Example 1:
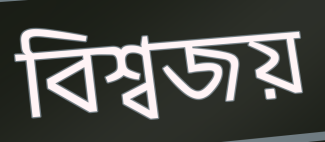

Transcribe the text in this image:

বিশ্বজয়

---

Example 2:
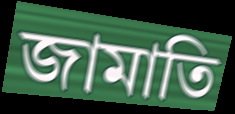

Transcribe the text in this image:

জামাতি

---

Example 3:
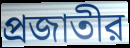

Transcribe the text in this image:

প্রজাতীর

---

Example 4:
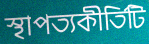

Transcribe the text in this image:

স্থাপত্যকীর্তিটি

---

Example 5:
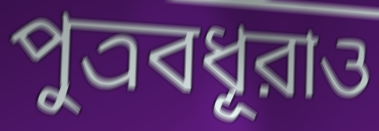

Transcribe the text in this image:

পুত্রবধূরাও